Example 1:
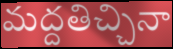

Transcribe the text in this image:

మద్దతిచ్చినా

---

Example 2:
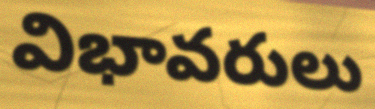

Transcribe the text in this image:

విభావరులు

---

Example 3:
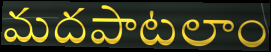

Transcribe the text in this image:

మదపాటలాం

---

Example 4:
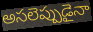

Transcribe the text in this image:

అసలెప్పుడైనా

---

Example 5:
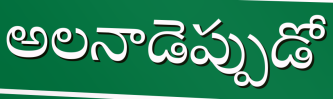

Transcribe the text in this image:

అలనాడెప్పుడో